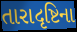
તારાદૃષ્ટિના